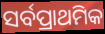
ସର୍ବପ୍ରାଥମିକ